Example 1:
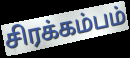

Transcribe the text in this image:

சிரக்கம்பம்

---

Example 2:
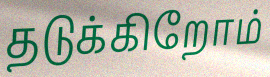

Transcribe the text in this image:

தடுக்கிறோம்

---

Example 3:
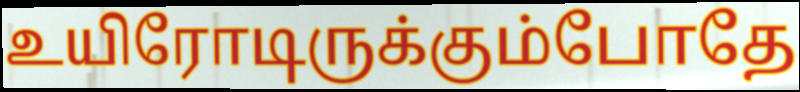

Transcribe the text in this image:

உயிரோடிருக்கும்போதே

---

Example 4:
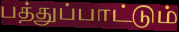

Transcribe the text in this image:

பத்துப்பாட்டும்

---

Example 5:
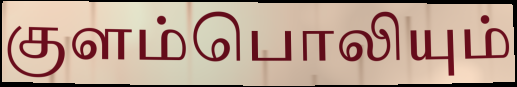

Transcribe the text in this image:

குளம்பொலியும்